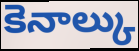
కెనాల్కు